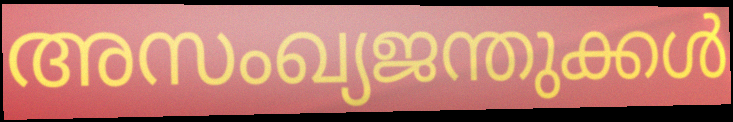
അസംഖ്യജന്തുക്കൾ